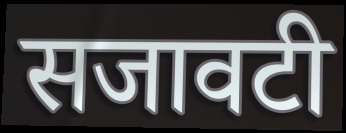
सजावटी